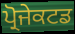
ਪ੍ਰੋਜੇਕਟਡ